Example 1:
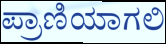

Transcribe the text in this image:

ಪ್ರಾಣಿಯಾಗಲಿ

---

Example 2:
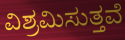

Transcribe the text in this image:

ವಿಶ್ರಮಿಸುತ್ತವೆ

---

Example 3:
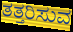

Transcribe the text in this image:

ತತ್ತರಿಸುವ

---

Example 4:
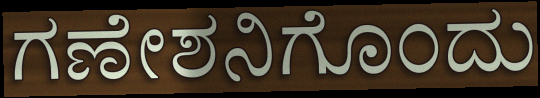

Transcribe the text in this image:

ಗಣೇಶನಿಗೊಂದು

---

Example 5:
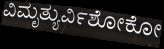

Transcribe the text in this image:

ವಿಮೃತ್ಯುರ್ವಿಶೋಕೋ